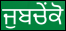
ਜੁਬਚੇਂਕੋ